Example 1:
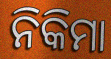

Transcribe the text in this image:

ନିକିମା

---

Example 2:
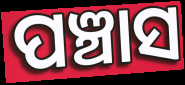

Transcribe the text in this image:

ପଞ୍ଚାସ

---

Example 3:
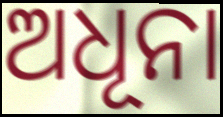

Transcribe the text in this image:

ଅଧୂନା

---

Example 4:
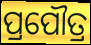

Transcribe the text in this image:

ପ୍ରପୌତ୍ର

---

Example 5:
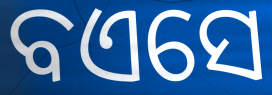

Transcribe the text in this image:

ବଏସେ